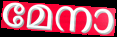
മേനാ